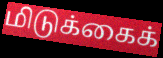
மிடுக்கைக்